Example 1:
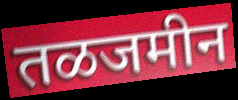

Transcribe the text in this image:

तळजमीन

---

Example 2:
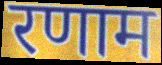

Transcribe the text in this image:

रणाम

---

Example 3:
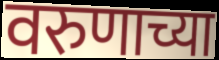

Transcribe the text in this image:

वरुणाच्या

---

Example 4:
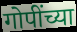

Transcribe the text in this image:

गोपींच्या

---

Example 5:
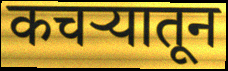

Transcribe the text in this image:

कचर्‍यातून